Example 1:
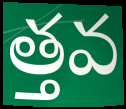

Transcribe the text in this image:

త్తవ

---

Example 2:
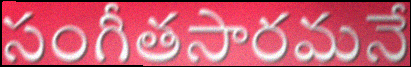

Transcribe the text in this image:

సంగీతసారమనే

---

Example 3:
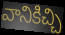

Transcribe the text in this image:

వానికిచ్చి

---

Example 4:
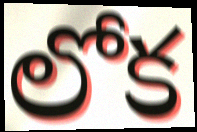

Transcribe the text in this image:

లోక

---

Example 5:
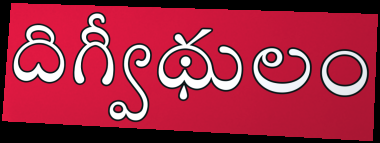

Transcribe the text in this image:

దిగ్వీథులం